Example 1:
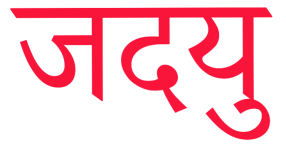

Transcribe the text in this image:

जदयु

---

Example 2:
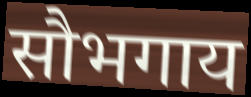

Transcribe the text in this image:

सौभगाय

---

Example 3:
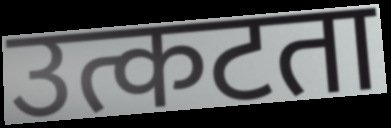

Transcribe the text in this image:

उत्कटता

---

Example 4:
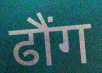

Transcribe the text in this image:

ढौंग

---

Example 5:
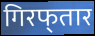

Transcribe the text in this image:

गिरफ्‌तार